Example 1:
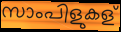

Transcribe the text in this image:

സാംപിളുകള്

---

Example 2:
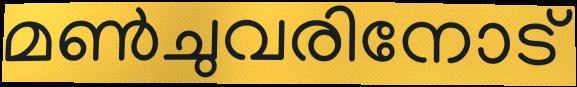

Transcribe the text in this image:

മൺചുവരിനോട്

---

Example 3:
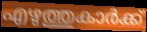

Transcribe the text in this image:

എഴുത്തുകാർക്ക്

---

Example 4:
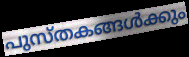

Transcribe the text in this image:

പുസ്തകങ്ങൾക്കും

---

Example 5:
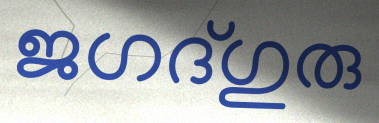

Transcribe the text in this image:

ജഗദ്ഗുരു